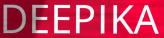
DEEPIKA